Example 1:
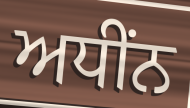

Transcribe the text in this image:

ਅਧੀਂਨ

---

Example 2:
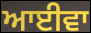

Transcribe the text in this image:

ਆਈਵਾ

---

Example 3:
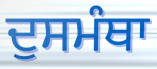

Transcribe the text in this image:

ਦੁਸਮੰਥਾ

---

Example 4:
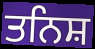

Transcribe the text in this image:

ਤਨਿਸ਼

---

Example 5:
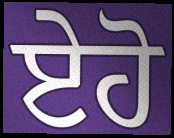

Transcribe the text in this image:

ਏਹੋ